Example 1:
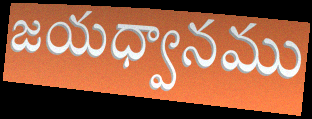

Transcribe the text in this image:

జయధ్వానము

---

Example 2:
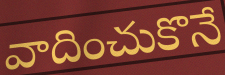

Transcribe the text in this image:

వాదించుకొనే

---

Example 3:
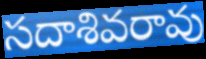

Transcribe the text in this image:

సదాశివరావు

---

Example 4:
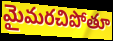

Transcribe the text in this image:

మైమరచిపోతూ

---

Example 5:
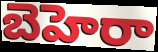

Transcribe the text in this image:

బెహెరా